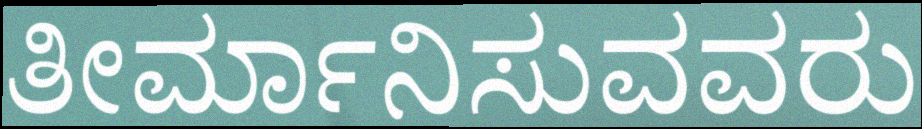
ತೀರ್ಮಾನಿಸುವವರು